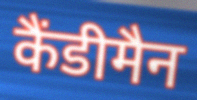
कैंडीमैन